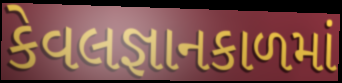
કેવલજ્ઞાનકાળમાં